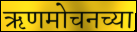
ऋणमोचनच्या